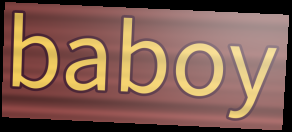
baboy